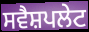
ਸਵੈਸ਼ਪਲੇਟ